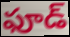
ఫూడ్